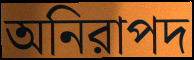
অনিরাপদ